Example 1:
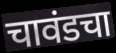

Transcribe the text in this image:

चावंडचा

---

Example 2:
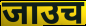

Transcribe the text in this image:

जाउच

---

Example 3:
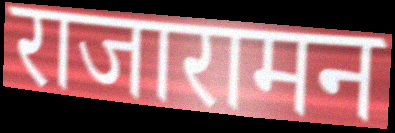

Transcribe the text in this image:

राजारामन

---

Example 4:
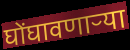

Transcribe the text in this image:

घोंघावणाऱ्या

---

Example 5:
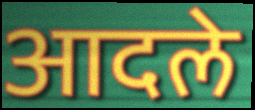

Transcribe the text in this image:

आदले